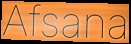
Afsana